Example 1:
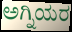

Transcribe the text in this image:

ಅಗ್ನಿಯರ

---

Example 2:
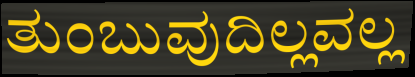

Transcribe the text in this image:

ತುಂಬುವುದಿಲ್ಲವಲ್ಲ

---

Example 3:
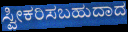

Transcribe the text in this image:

ಸ್ವೀಕರಿಸಬಹುದಾದ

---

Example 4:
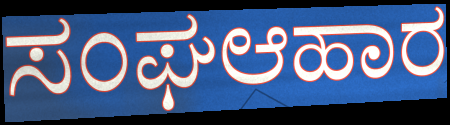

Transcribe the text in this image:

ಸಂಘಆಹಾರ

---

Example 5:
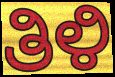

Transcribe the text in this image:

ತಿಳಿ